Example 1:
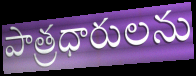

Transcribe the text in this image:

పాత్రధారులను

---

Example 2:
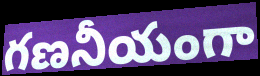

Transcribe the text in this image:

గణనీయంగా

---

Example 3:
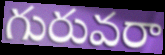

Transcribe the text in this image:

గురువరా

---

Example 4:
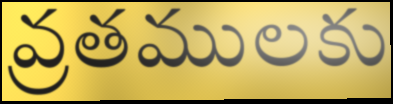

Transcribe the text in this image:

వ్రతములకు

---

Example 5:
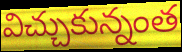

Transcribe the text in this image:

విచ్చుకున్నంత